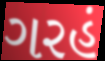
ગરહં